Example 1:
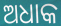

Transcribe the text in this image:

ଅଧାକ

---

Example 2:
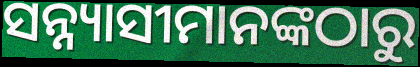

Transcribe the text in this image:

ସନ୍ନ୍ୟାସୀମାନଙ୍କଠାରୁ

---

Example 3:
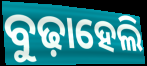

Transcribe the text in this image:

ବୁଢ଼ାହେଲି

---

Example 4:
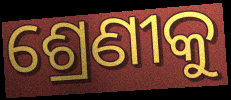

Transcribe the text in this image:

ଶ୍ରେଣୀକୁ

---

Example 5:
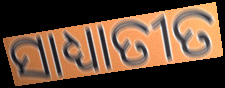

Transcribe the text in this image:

ସାଧ୍ୟାତୀତ